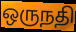
ஒருநதி